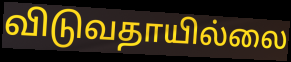
விடுவதாயில்லை